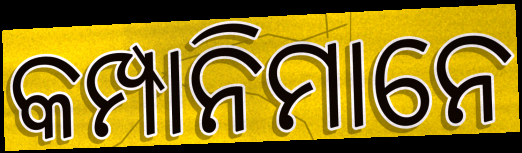
କମ୍ପାନିମାନେ